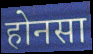
होनसा